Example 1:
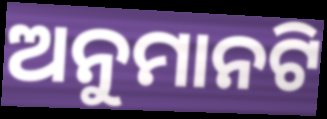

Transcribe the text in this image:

ଅନୁମାନଟି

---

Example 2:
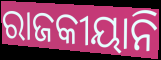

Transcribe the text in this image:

ରାଜକୀୟାନି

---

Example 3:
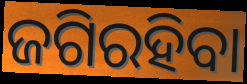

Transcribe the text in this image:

ଜଗିରହିବା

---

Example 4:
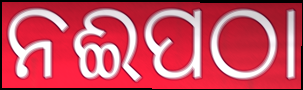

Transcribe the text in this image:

ନଈପଠା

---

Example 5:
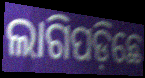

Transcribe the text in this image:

ଲାଗିପଡ଼ିଛେ